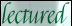
lectured